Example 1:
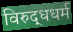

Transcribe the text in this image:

विरुद्धधर्म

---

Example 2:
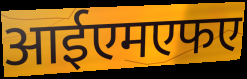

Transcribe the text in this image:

आईएमएफए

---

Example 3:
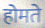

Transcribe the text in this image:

होमते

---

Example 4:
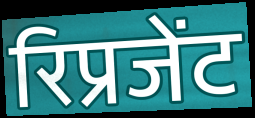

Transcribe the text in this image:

रिप्रजेंट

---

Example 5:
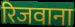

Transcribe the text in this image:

रिजवाना